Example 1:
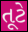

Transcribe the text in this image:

તૂટે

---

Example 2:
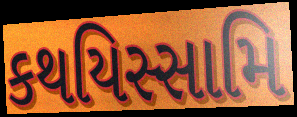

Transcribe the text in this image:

કથયિસ્સામિ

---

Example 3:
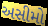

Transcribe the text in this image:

અસીમો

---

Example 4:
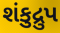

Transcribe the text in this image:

શંકુદ્રુપ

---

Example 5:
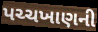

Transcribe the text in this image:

પચ્ચખાણની